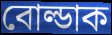
বোল্ডাক